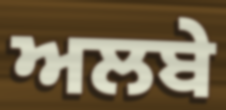
ਅਲਬੇ